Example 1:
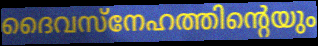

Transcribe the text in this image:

ദൈവസ്നേഹത്തിന്റെയും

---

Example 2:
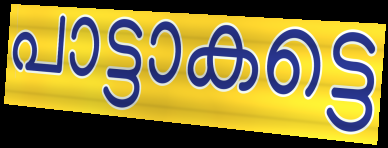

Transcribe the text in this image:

പാട്ടാകട്ടെ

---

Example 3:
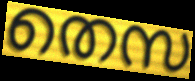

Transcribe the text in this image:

തെസ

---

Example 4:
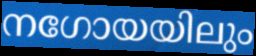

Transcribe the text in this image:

നഗോയയിലും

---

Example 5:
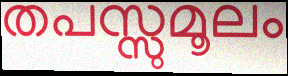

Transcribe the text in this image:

തപസ്സുമൂലം